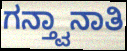
ಗನ್ತ್ವಾನಾತಿ